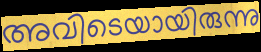
അവിടെയായിരുന്നു